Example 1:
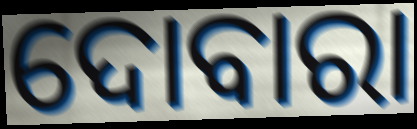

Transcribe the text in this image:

ଦୋବାରା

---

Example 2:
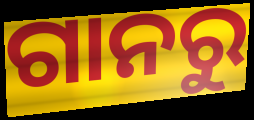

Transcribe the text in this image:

ଗାନରୁ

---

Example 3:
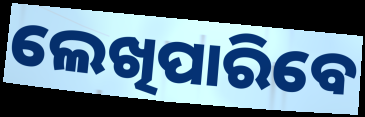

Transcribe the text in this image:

ଲେଖିପାରିବେ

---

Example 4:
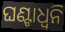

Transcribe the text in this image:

ଘଣ୍ଟାଧ୍ୱନି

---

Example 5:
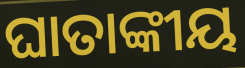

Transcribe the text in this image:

ଘାତାଙ୍କୀୟ